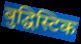
बुद्धिस्टिक